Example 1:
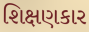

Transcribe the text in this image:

શિક્ષણકાર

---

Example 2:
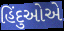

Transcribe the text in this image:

હિંદુઓએ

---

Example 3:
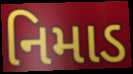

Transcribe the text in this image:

નિમાડ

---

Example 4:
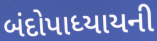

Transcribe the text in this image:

બંદોપાધ્યાયની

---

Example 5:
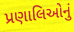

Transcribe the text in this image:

પ્રણાલિઓનું